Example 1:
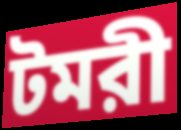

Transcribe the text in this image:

টমরী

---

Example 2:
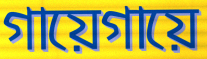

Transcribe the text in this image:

গায়েগায়ে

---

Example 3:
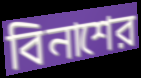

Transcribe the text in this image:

বিনাশের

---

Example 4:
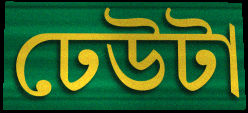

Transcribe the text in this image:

ঢেউটা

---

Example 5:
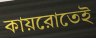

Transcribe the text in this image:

কায়রোতেই